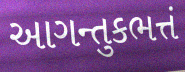
આગન્તુકભત્તં